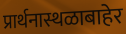
प्रार्थनास्थळाबाहेर